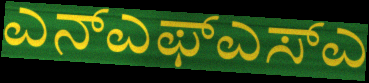
ಎನ್ಎಫ್ಎಸ್ಎ